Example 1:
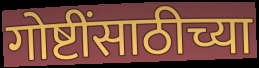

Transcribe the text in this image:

गोष्टींसाठीच्या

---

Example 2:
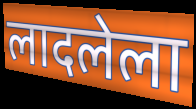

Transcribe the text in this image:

लादलेला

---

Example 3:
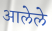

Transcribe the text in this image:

आलेले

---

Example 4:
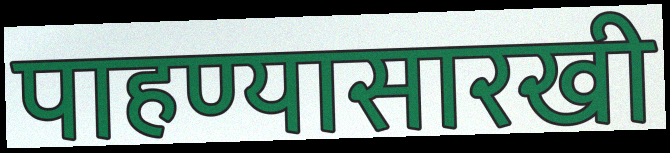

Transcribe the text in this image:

पाहण्यासारखी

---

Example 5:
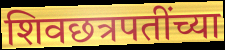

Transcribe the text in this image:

शिवछत्रपतींच्या